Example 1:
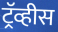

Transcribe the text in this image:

ट्रॅव्हीस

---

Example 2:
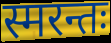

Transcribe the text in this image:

स्मरन्तः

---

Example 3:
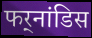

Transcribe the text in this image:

फर्नांडिस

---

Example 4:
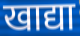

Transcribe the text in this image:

खाद्या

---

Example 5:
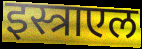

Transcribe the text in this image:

इस्त्राएल